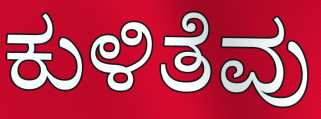
ಕುಳಿತೆವು